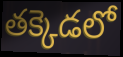
తక్కెడలో